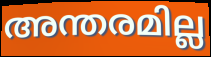
അന്തരമില്ല